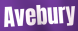
Avebury